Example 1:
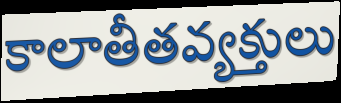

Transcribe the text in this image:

కాలాతీతవ్యక్తులు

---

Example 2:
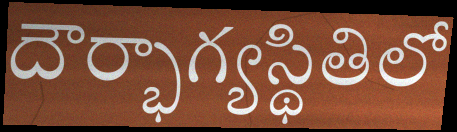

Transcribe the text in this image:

దౌర్భాగ్యస్థితిలో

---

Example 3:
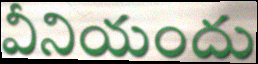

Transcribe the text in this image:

వీనియందు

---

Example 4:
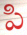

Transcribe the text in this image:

పి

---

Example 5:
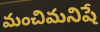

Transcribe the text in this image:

మంచిమనిషే